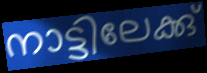
നാട്ടിലേക്കു്